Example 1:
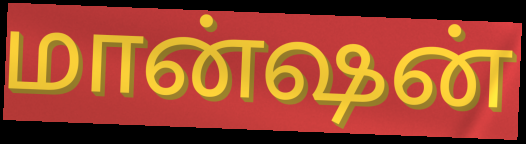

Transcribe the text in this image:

மான்ஷன்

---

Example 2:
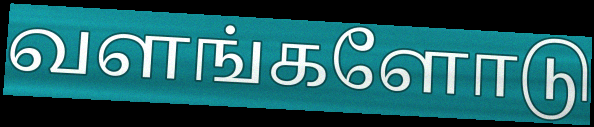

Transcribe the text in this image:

வளங்களோடு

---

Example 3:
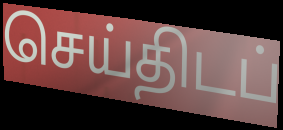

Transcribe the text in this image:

செய்திடப்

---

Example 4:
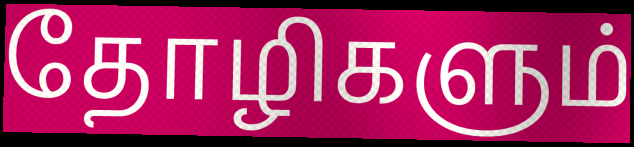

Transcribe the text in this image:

தோழிகளும்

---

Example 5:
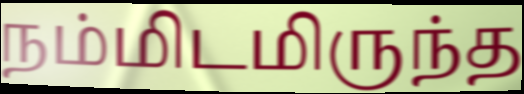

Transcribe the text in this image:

நம்மிடமிருந்த